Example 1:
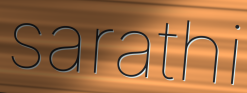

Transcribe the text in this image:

sarathi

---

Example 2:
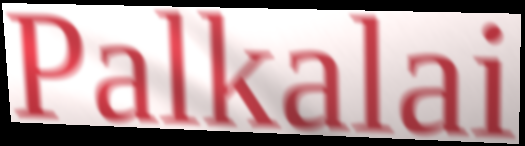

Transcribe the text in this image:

Palkalai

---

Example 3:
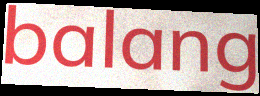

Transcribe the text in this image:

balang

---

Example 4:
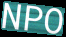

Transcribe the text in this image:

NPO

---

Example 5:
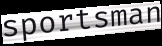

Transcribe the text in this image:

sportsman